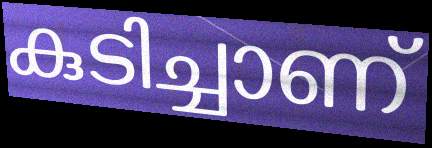
കുടിച്ചാണ്